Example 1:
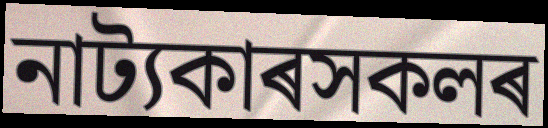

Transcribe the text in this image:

নাট্যকাৰসকলৰ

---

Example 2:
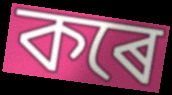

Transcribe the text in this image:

কৰে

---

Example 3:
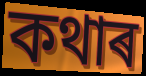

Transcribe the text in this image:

কথাৰ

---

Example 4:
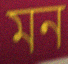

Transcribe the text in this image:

মন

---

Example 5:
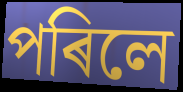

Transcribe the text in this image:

পৰিলে